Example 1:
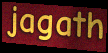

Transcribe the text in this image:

jagath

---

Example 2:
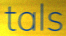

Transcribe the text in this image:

tals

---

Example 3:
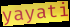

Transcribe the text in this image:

yayati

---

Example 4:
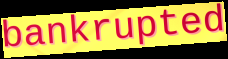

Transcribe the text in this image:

bankrupted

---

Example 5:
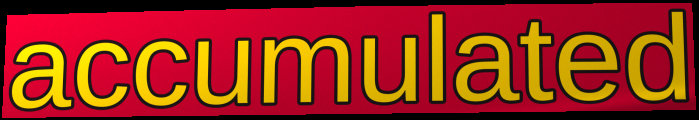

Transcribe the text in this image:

accumulated